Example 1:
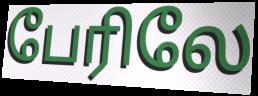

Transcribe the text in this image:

பேரிலே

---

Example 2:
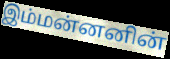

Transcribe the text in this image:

இம்மன்னனின்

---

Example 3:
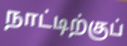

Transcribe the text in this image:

நாட்டிற்குப்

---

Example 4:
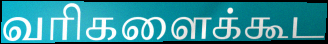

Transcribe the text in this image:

வரிகளைக்கூட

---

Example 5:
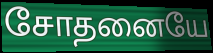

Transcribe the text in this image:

சோதனையே